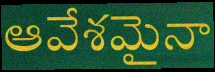
ఆవేశమైనా